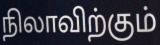
நிலாவிற்கும்